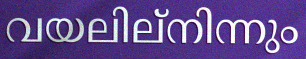
വയലില്നിന്നും